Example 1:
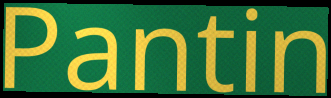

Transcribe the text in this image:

Pantin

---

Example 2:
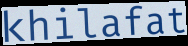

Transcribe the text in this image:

khilafat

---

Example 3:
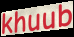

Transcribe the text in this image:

khuub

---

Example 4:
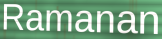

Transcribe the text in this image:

Ramanan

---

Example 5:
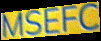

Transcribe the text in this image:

MSEFC